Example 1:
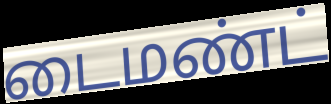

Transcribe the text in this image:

டைமண்ட்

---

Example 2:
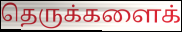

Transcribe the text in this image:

தெருக்களைக்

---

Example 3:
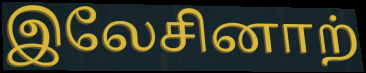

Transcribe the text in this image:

இலேசினாற்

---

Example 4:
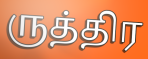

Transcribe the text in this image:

ருத்திர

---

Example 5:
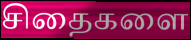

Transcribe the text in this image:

சிதைகளை